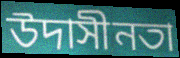
উদাসীনতা